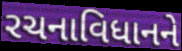
રચનાવિધાનને